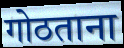
गोठताना